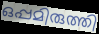
ഒപ്പമിരുത്തി